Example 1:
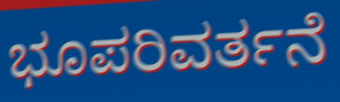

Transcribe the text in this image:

ಭೂಪರಿವರ್ತನೆ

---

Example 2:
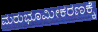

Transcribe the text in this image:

ಮರುಭೂಮೀಕರಣಕ್ಕೆ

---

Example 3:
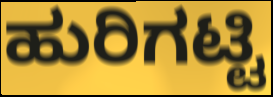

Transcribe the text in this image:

ಹುರಿಗಟ್ಟಿ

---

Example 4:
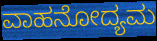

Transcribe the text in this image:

ವಾಹನೋದ್ಯಮ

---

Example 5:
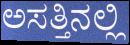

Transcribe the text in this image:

ಅಸತ್ತಿನಲ್ಲಿ